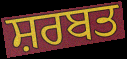
ਸ਼ਰਬਤ